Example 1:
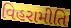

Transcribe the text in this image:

વિહરામીતિ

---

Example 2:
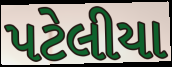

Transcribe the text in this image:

પટેલીયા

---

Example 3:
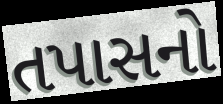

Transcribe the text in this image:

તપાસનો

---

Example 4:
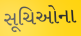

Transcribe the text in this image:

સૂચિઓના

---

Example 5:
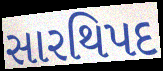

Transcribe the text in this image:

સારથિપદ